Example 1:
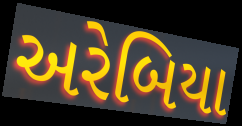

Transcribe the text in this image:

અરેબિયા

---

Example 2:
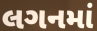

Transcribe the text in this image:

લગનમાં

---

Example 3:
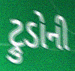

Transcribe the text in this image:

ટ્રુડોની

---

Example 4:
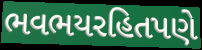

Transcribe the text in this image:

ભવભયરહિતપણે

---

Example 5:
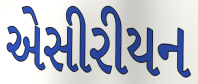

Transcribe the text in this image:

એસીરીયન